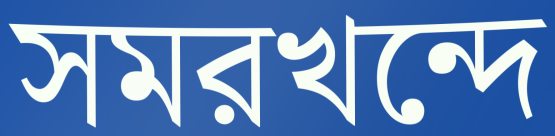
সমরখন্দে